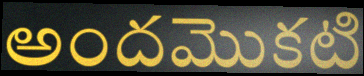
అందమొకటి